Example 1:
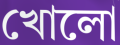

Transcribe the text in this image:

খোলো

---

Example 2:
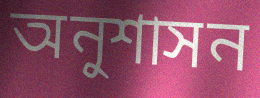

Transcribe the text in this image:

অনুশাসন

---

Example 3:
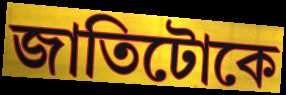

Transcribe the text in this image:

জাতিটোকে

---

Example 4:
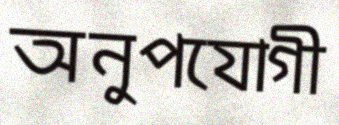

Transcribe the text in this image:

অনুপযোগী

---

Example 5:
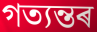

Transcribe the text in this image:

গত্যন্তৰ